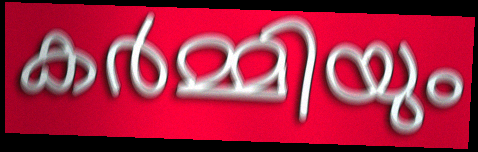
കർമ്മിയും